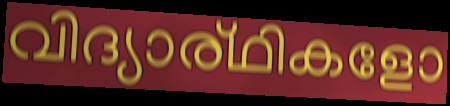
വിദ്യാര്ഥികളോ